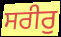
ਸਰੀਰੁ